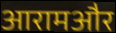
आरामऔर